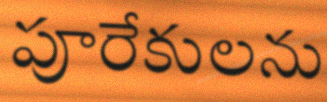
పూరేకులను